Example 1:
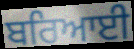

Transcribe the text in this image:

ਬਰਿਆਈ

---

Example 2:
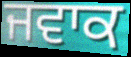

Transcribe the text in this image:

ਜਵਾਕ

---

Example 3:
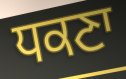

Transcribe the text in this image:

ਧਕਣਾ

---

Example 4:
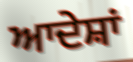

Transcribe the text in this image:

ਆਦੇਸ਼ਾਂ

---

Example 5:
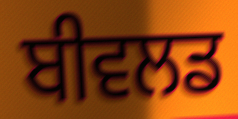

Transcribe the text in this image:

ਬੀਵਲਡ